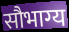
सौभाग्य